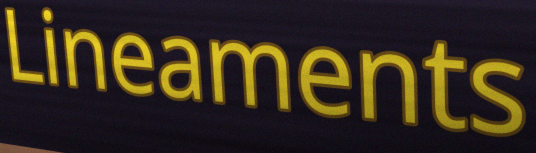
Lineaments